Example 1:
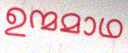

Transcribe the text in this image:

ഉന്മമാഥ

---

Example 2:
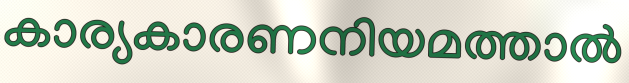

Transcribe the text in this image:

കാര്യകാരണനിയമത്താൽ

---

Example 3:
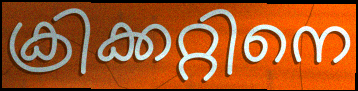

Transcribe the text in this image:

ക്രിക്കറ്റിനെ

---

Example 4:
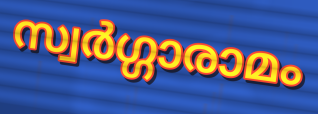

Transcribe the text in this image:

സ്വർഗ്ഗാരാമം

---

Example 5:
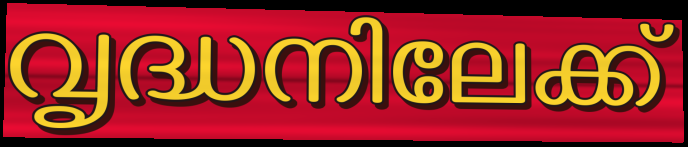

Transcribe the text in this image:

വൃദ്ധനിലേക്ക്